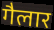
गैलार